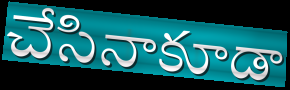
చేసినాకూడా